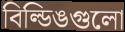
বিল্ডিঙগুলো